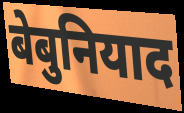
बेबुनियाद